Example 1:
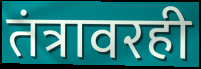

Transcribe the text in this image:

तंत्रावरही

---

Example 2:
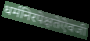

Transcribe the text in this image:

धर्मनिरपेक्षतेऐवजी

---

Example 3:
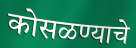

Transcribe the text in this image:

कोसळण्याचे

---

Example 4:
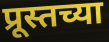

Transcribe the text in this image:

प्रूस्तच्या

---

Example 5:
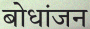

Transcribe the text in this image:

बोधांजन